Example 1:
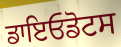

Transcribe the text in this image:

ਡਾਇਓਡੋਟਸ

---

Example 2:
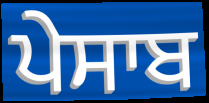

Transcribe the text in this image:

ਪੇਸਾਬ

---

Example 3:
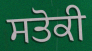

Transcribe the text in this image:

ਸਤੋਕੀ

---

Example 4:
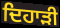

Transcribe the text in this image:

ਦਿਹਾੜੀ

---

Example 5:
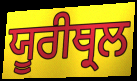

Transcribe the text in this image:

ਯੂਰੀਥ੍ਰਲ